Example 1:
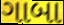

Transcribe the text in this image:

ગાબા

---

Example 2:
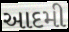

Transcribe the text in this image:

આદમી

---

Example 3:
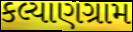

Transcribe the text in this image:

કલ્યાણગ્રામ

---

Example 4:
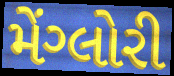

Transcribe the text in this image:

મેંગ્લોરી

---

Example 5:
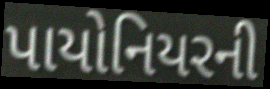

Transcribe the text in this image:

પાયોનિયરની